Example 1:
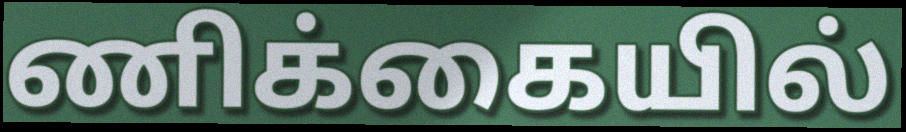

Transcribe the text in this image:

ணிக்கையில்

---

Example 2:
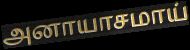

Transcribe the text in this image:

அனாயாசமாய்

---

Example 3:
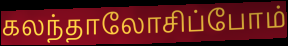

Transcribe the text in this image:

கலந்தாலோசிப்போம்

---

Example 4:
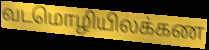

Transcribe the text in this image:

வடமொழியிலக்கண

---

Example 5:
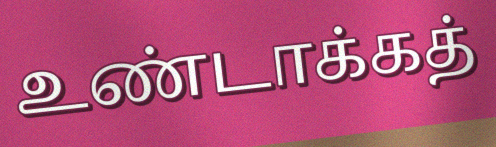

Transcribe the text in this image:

உண்டாக்கத்